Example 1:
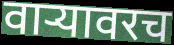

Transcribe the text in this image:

वाऱ्यावरच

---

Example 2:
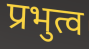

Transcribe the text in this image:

प्रभुत्व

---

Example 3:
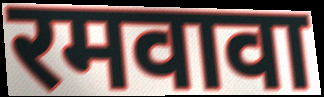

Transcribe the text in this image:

रमवावा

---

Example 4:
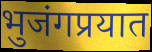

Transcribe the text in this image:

भुजंगप्रयात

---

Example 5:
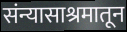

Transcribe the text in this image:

संन्यासाश्रमातून